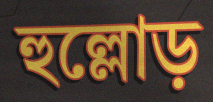
হুল্লোড়